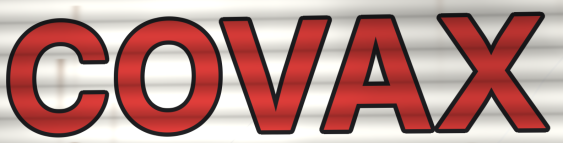
COVAX